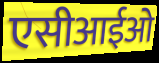
एसीआईओ